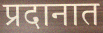
प्रदानात